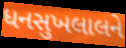
ધનસુખલાલને